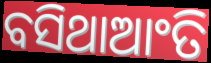
ବସିଥାଆଂତି